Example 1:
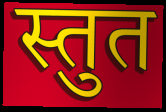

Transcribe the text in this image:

स्तुत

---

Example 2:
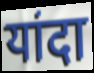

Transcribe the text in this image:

यांदा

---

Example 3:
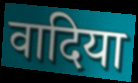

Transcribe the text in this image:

वादिया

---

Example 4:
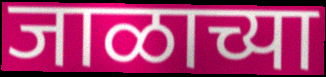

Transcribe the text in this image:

जाळाच्या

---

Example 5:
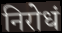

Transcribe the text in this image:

निरोधं